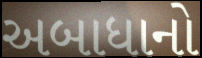
અબાધાનો